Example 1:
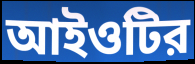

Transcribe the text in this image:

আইওটির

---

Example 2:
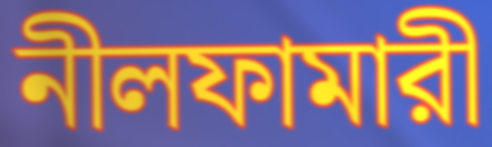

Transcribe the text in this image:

নীলফামারী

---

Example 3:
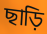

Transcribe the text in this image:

ছাড়ি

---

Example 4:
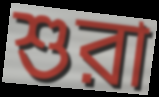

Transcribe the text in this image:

শুরা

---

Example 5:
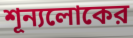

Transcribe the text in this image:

শূন্যলোকের